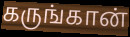
கருங்கான்